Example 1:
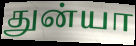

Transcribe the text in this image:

துன்யா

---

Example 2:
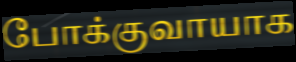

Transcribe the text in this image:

போக்குவாயாக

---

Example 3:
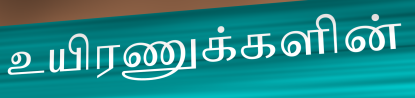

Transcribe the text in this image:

உயிரணுக்களின்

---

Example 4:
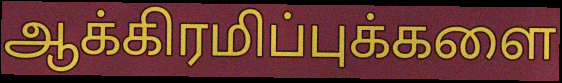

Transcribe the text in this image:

ஆக்கிரமிப்புக்களை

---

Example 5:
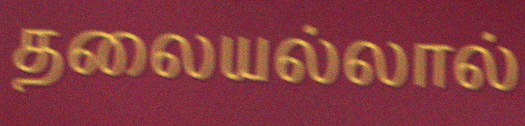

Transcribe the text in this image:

தலையல்லால்